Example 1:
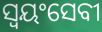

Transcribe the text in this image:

ସ୍ୱୟଂସେବୀ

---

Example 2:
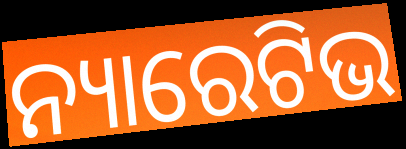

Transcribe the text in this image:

ନ୍ୟାରେଟିଭ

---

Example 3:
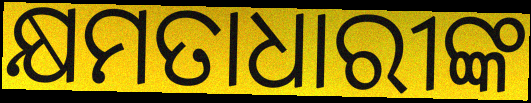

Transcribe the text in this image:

କ୍ଷମତାଧାରୀଙ୍କ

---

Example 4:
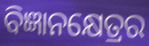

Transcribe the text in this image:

ବିଜ୍ଞାନକ୍ଷେତ୍ରର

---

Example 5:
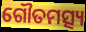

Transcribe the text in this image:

ଗୌତମତ୍ସ୍ୟ